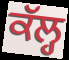
ਕੱਲ੍ਹ